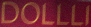
DOLLLI